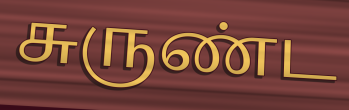
சுருண்ட